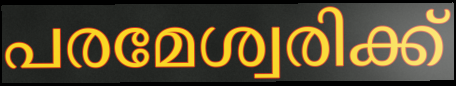
പരമേശ്വരിക്ക്